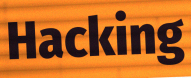
Hacking